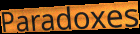
Paradoxes